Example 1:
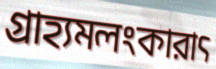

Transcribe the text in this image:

গ্রাহ্যমলংকারাৎ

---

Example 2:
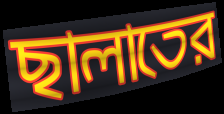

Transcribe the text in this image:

ছালাতের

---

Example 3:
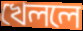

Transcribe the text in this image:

খেললে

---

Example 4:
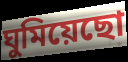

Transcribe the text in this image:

ঘুমিয়েছো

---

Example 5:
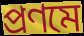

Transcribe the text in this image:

প্রণমে